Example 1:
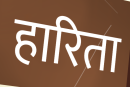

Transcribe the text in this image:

हारिता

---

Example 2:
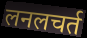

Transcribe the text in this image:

लनलचर्त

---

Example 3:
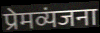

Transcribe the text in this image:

प्रेमव्यंजना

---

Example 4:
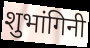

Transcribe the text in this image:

शुभांगिनी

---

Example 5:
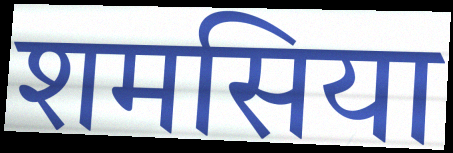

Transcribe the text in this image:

शमसिया